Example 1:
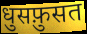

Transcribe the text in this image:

धुसफ़ुसत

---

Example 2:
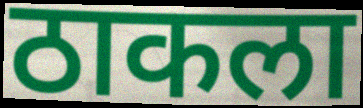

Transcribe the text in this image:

ठाकला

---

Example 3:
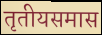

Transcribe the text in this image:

तृतीयसमास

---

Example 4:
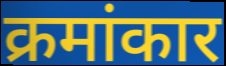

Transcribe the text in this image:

क्रमांकार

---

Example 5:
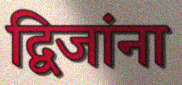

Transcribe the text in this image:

द्विजांना